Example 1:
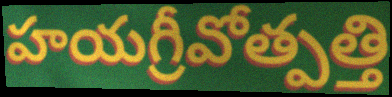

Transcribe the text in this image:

హయగ్రీవోత్పత్తి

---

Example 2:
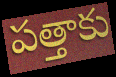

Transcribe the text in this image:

పత్తాకు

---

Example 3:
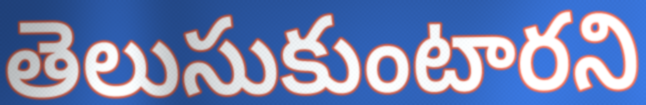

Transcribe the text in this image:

తెలుసుకుంటారని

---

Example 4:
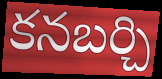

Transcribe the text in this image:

కనబర్చి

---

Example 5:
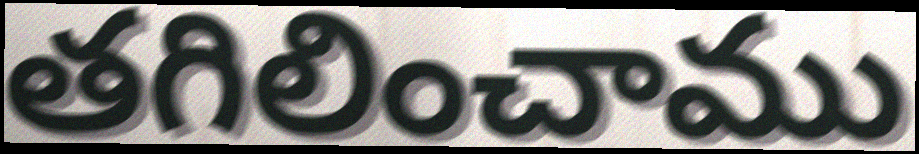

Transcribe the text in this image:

తగిలించాము